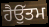
ਹੈਉੱਤਮ